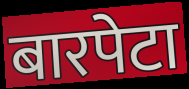
बारपेटा